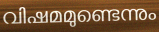
വിഷമമുണ്ടെന്നും